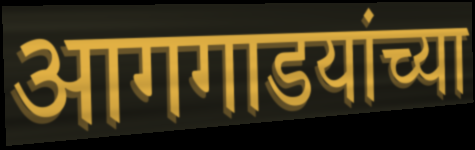
आगगाडयांच्या